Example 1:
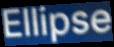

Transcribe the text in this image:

Ellipse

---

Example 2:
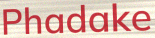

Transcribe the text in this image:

Phadake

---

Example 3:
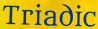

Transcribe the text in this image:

Triadic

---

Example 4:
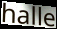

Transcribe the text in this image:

halle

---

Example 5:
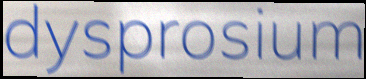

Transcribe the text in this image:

dysprosium